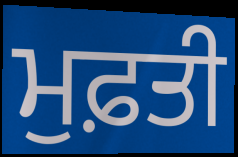
ਮੁਫ਼ਤੀ